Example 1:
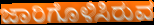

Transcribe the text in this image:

ಜಾರಿಗೊಳಿಸಿರುವ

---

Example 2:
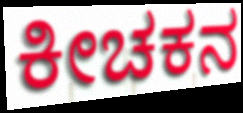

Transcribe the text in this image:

ಕೀಚಕನ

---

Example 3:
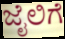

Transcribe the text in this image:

ಜೈಲಿಗೆ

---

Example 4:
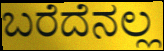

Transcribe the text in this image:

ಬರೆದೆನಲ್ಲ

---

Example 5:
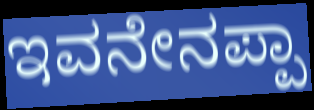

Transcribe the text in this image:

ಇವನೇನಪ್ಪಾ